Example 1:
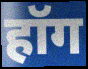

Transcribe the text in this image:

हॉग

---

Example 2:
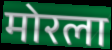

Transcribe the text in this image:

मोरला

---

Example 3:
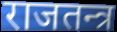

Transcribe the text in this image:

राजतन्त्र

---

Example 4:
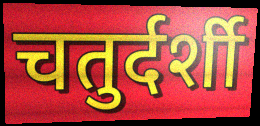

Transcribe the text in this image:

चतुर्दर्शी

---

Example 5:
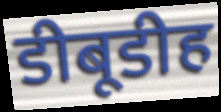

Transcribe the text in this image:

डीबूडीह